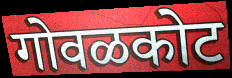
गोवळकोट